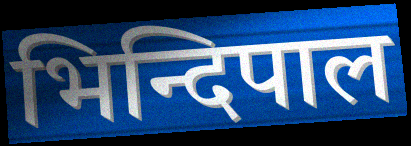
भिन्दिपाल